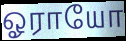
ஓராயோ